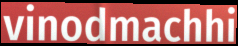
vinodmachhi